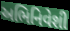
અભિનિવેશી